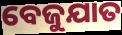
ବେଜୁଯାତ